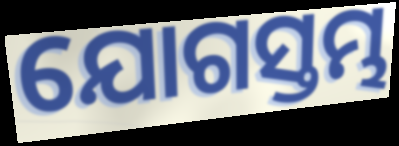
ଯୋଗସ୍ତମ୍ଭ